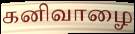
கனிவாழை